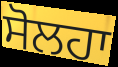
ਸੋਲਹਾ